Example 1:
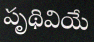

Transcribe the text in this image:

పృథివియే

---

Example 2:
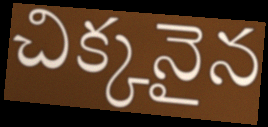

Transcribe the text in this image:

చిక్కనైన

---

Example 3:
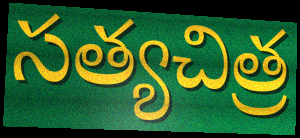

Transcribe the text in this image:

సత్యచిత్ర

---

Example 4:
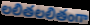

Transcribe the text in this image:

లలితలలితంగా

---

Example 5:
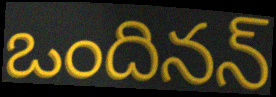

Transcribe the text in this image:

ఒందినన్